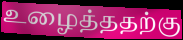
உழைத்ததற்கு